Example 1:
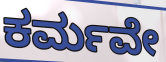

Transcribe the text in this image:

ಕರ್ಮವೇ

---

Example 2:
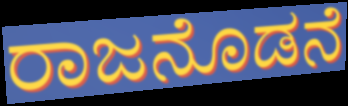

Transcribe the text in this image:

ರಾಜನೊಡನೆ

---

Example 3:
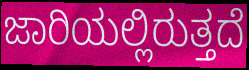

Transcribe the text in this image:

ಜಾರಿಯಲ್ಲಿರುತ್ತದೆ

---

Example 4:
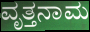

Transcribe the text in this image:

ವೃತ್ತನಾಮ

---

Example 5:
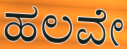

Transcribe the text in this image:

ಹಲವೇ